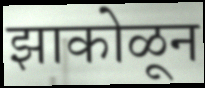
झाकोळून